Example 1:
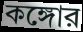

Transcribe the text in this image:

কঙ্গোর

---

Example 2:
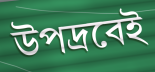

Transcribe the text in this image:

উপদ্রবেই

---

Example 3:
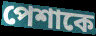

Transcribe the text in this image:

পেশাকে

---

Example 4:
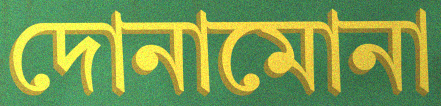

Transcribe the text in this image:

দোনামোনা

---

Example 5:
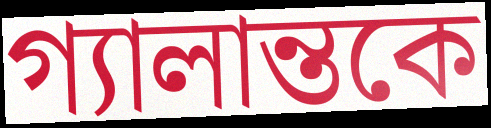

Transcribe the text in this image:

গ্যালান্তকে